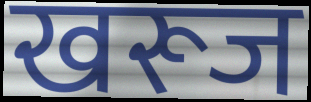
खरूज